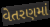
વેતરણમાં